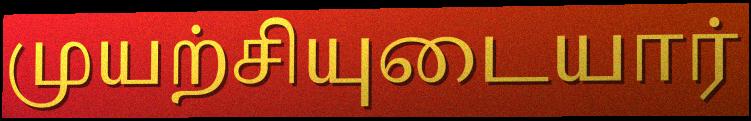
முயற்சியுடையார்